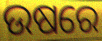
ଉଷରେ